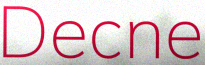
Decne